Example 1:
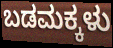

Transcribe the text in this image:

ಬಡಮಕ್ಕಳು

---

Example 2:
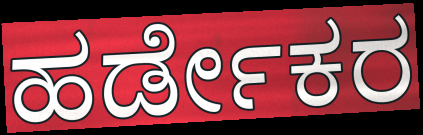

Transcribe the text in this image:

ಹರ್ಡೇಕರ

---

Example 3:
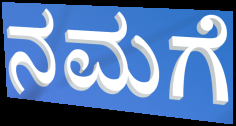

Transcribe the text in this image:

ನಮಗೆ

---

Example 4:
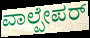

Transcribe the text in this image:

ವಾಲ್ಪೇಪರ್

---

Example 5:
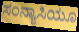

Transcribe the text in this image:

ಸಂನ್ಯಾಸಿಯೂ